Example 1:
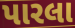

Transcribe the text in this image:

પારલા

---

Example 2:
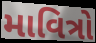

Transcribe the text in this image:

માવિત્રો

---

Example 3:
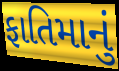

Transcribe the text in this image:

ફાતિમાનું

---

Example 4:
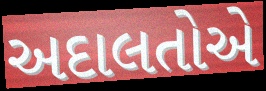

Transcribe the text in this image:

અદાલતોએ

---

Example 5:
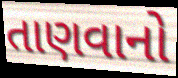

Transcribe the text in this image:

તાણવાનો